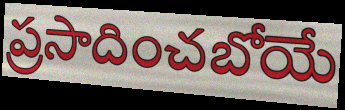
ప్రసాదించబోయే